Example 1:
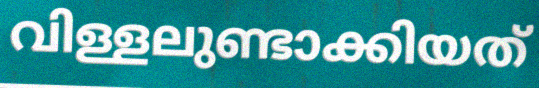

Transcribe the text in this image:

വിള്ളലുണ്ടാക്കിയത്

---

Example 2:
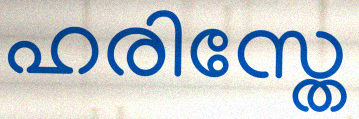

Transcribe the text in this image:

ഹരിസ്തേ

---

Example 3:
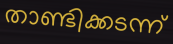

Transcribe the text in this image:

താണ്ടിക്കടന്ന്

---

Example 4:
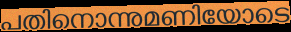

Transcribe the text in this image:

പതിനൊന്നുമണിയോടെ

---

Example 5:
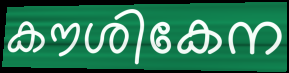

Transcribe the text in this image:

കൗശികേന